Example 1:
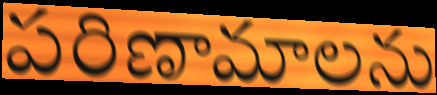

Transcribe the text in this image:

పరిణామాలను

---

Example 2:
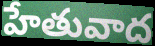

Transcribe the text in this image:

హేతువాద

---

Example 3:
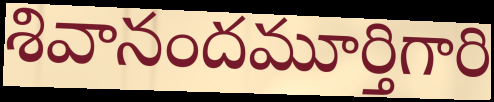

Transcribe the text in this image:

శివానందమూర్తిగారి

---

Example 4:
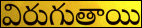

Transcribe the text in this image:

విరుగుతాయి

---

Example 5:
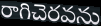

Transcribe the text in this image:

రాగిచెరవను